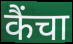
कैंचा